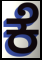
ಕೆ